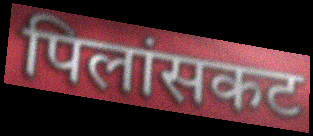
पिलांसकट